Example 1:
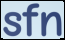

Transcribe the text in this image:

sfn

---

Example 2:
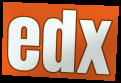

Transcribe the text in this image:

edx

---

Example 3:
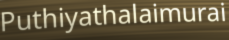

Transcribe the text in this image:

Puthiyathalaimurai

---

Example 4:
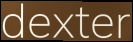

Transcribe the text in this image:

dexter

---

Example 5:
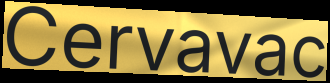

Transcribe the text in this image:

Cervavac